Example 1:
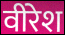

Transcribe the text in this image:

वीरेश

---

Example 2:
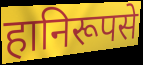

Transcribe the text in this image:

हानिरूपसे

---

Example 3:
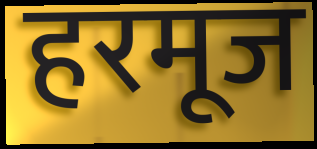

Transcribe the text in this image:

हरमूज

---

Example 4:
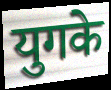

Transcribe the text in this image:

युगके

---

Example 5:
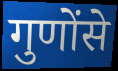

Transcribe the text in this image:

गुणोंसे